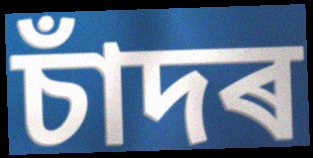
চাঁদৰ